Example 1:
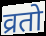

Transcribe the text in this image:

व्रतो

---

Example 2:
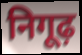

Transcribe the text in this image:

निगूढ़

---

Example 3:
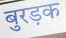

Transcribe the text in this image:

बुरड़क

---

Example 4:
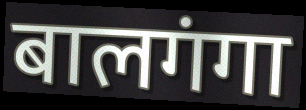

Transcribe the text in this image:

बालगंगा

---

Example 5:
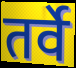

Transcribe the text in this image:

तर्वे